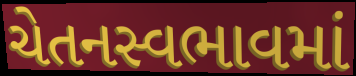
ચેતનસ્વભાવમાં